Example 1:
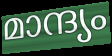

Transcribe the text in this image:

മാന്ദ്യം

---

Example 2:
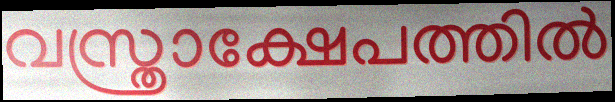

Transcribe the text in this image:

വസ്ത്രാക്ഷേപത്തിൽ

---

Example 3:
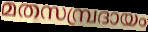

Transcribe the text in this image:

മതസമ്പ്രദായം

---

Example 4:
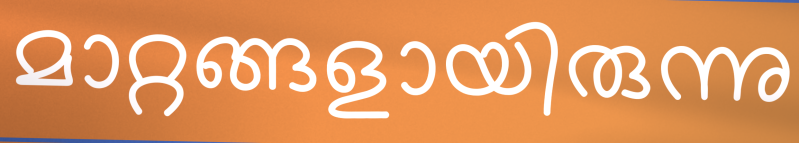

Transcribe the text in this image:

മാറ്റങ്ങളായിരുന്നു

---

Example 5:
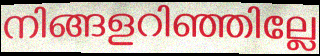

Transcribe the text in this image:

നിങ്ങളറിഞ്ഞില്ലേ